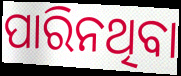
ପାରିନଥିବା